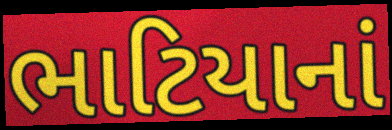
ભાટિયાનાં